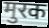
मुरक